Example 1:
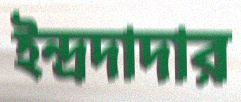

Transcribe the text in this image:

ইন্দ্রদাদার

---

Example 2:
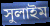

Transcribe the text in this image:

সুলাইম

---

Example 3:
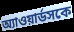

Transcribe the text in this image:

অ্যাওয়ার্ডসকে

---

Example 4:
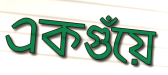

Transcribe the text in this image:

একগুঁয়ে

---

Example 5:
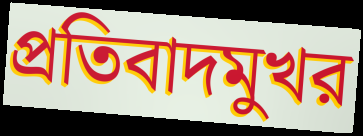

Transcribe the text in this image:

প্রতিবাদমুখর